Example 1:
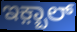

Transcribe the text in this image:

ಇಕ಼್ಬಾಲ್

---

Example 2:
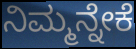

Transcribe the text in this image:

ನಿಮ್ಮನ್ನೇಕೆ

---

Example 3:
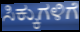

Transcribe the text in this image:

ಸಿಕ್ಕುಗಳಿಗೆ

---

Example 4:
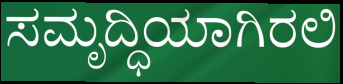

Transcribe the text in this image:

ಸಮೃದ್ಧಿಯಾಗಿರಲಿ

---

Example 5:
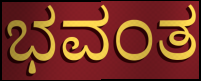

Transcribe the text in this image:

ಭವಂತ